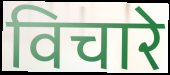
विचारे